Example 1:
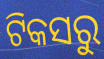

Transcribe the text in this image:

ଟିକସରୁ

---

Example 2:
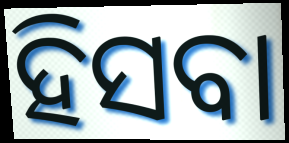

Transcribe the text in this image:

ହିସବା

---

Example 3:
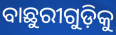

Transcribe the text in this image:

ବାଛୁରୀଗୁଡ଼ିକୁ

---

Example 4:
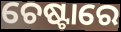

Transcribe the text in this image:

ଚେଷ୍ଟାରେ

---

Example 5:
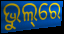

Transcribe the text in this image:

ଭୁଲ୍‌ରେ